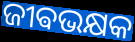
ଜୀଵଭକ୍ଷକ